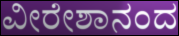
ವೀರೇಶಾನಂದ